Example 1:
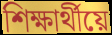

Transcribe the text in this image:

শিক্ষাৰ্থীয়ে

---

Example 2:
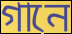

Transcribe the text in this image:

গানে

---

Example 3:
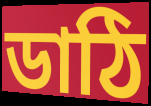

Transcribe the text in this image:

ডাঠি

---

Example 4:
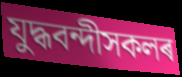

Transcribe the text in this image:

যুদ্ধবন্দীসকলৰ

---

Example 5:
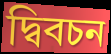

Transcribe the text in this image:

দ্বিবচন